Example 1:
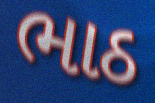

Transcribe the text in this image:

ભાઠ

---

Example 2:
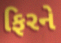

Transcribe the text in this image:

ફિરને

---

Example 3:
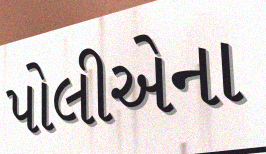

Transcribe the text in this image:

પોલીએના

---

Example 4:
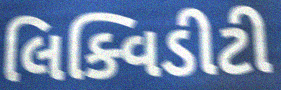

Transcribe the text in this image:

લિક્વિડીટી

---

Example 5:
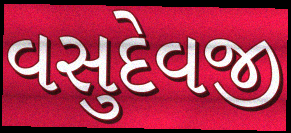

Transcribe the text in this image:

વસુદેવજી